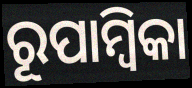
ରୂପାମ୍ବିକା